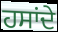
ਹਸਾਂਦੇ